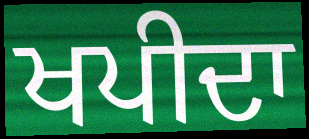
ਖਪੀਦਾ